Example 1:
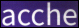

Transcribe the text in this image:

acche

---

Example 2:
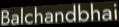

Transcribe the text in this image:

Balchandbhai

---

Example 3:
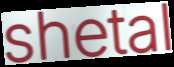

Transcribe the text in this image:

shetal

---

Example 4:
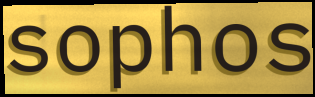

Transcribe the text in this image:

sophos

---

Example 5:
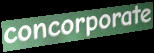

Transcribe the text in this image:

concorporate